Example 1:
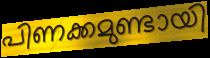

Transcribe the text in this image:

പിണക്കമുണ്ടായി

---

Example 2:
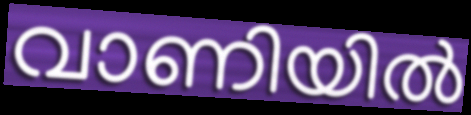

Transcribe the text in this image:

വാണിയിൽ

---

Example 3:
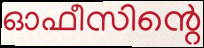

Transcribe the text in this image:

ഓഫീസിന്റെ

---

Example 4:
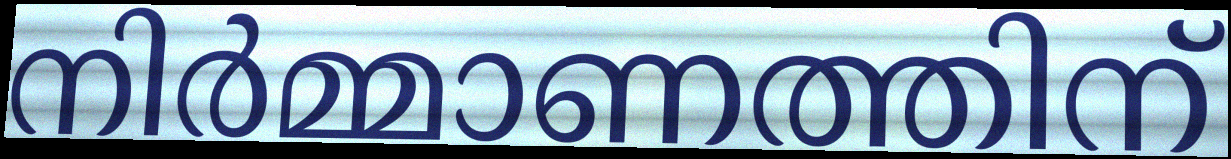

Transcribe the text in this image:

നിർമ്മാണത്തിന്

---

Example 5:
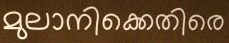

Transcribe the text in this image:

മുലാനിക്കെതിരെ